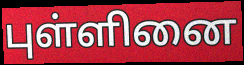
புள்ளினை